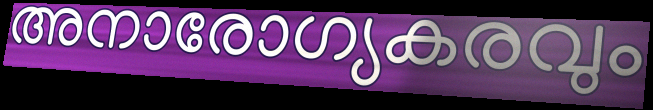
അനാരോഗ്യകരവും